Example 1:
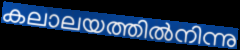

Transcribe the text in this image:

കലാലയത്തിൽനിന്നു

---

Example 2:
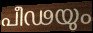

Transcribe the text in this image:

പീഢയും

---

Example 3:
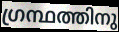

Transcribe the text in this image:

ഗ്രന്ഥത്തിനു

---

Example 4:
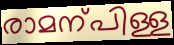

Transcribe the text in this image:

രാമന്പിള്ള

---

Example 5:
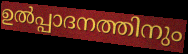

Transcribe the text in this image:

ഉൽപ്പാദനത്തിനും